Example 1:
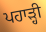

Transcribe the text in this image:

ਪਹਾੜ੍ਹੀ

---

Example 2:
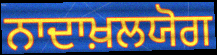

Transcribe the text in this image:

ਨਾਦਾਖ਼ਲਯੋਗ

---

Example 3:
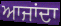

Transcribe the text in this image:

ਆਜਾਂਦਾ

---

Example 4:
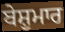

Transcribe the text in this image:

ਬੇਸ਼ੁਮਾਰ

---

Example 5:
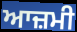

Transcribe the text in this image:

ਆਜ਼ਮੀ